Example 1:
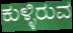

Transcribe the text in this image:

ಕುಳ್ಳಿರುವ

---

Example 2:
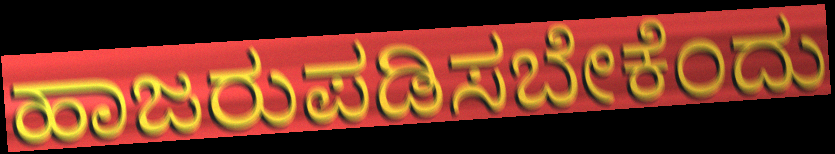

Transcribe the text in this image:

ಹಾಜರುಪಡಿಸಬೇಕೆಂದು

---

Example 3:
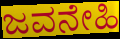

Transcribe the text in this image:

ಜವನೇಹಿ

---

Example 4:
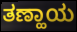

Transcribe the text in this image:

ತಣ್ಹಾಯ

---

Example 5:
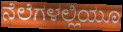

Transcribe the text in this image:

ನೆಲೆಗಳಲ್ಲಿಯೂ